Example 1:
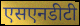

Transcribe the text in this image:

एसएनडीटी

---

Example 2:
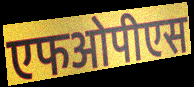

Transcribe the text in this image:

एफओपीएस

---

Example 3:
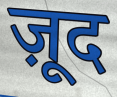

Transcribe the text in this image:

ज़ूद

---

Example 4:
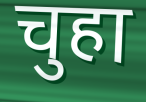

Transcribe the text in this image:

चुहा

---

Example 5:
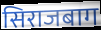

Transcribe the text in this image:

सिराजबाग